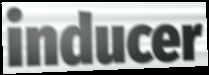
inducer